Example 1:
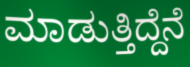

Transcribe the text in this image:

ಮಾಡುತ್ತಿದ್ದೆನೆ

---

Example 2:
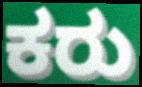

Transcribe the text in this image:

ಕರು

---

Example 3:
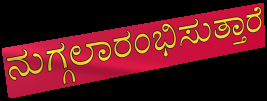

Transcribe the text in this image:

ನುಗ್ಗಲಾರಂಭಿಸುತ್ತಾರೆ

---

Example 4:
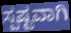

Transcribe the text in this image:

ಸ್ಪಷ್ಟವಾಗಿ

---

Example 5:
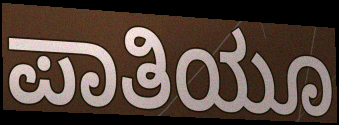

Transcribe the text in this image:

ಪಾತಿಯೂ